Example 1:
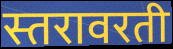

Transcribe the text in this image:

स्तरावरती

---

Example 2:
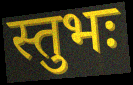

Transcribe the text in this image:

स्तुभः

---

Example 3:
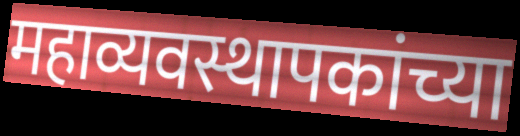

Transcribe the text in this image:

महाव्यवस्थापकांच्या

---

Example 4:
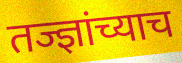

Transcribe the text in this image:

तज्ज्ञांच्याच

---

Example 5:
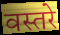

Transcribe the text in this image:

वस्तरे